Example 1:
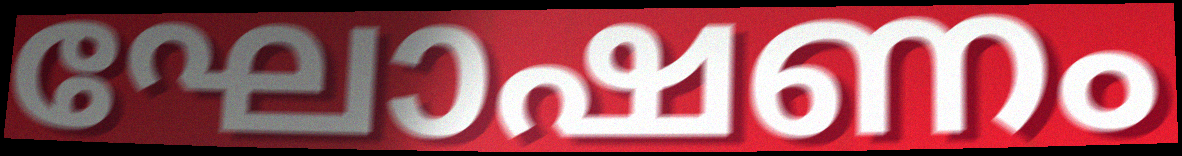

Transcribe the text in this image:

ഘോഷണം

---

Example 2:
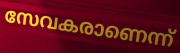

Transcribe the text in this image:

സേവകരാണെന്ന്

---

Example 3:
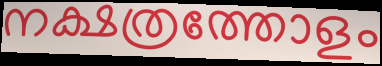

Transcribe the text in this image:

നക്ഷത്രത്തോളം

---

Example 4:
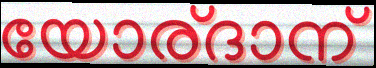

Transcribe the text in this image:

യോര്ദാന്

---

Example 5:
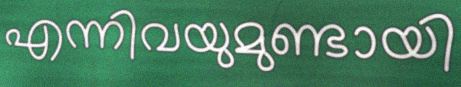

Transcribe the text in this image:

എന്നിവയുമുണ്ടായി